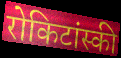
रोकिटांस्की